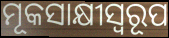
ମୂକସାକ୍ଷୀସ୍ୱରୂପ